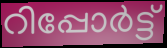
റിപ്പോർട്ട്